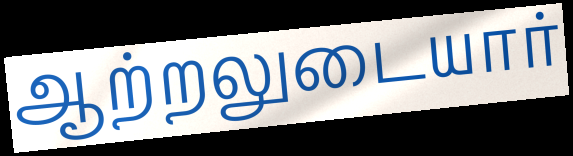
ஆற்றலுடையார்